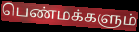
பெண்மக்களும்